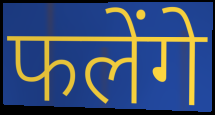
फलेंगे